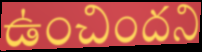
ఉంచిందని